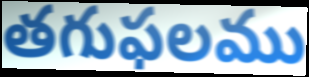
తగుఫలము